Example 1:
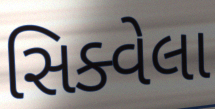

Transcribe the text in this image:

સિક્વેલા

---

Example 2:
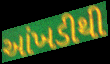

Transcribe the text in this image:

આંખડીથી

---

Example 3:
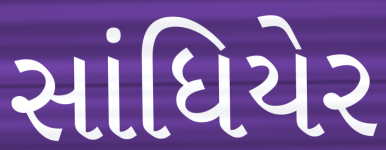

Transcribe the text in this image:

સાંધિયેર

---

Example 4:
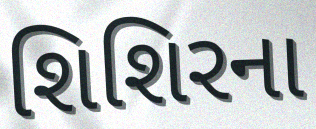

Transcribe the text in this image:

શિશિરના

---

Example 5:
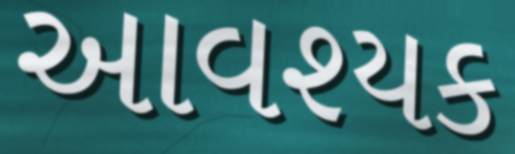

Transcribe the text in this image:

આવશ્યક